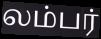
லம்பர்